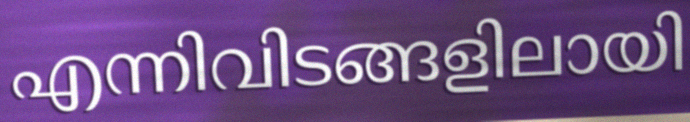
എന്നിവിടങ്ങളിലായി